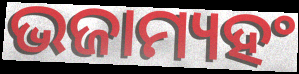
ଭଜାମ୍ୟହଂ